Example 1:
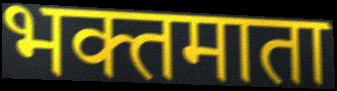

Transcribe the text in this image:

भक्तमाता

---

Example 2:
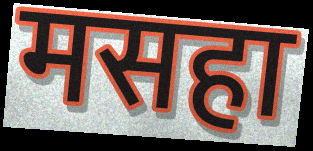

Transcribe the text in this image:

मसहा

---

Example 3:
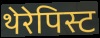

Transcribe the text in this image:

थेरेपिस्‍ट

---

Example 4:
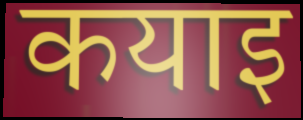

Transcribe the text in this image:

कयाइ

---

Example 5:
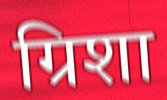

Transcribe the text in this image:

ग्रिशा